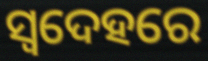
ସ୍ଵଦେହରେ